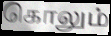
கொலும்